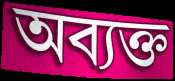
অব্যক্ত